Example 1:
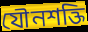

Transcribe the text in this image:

যৌনশক্তি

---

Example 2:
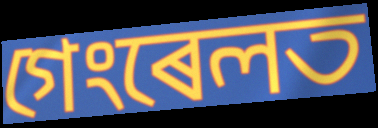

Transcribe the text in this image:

গেংৰেলত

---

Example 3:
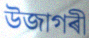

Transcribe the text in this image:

উজাগৰী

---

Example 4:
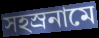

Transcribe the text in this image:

সহস্ৰনামে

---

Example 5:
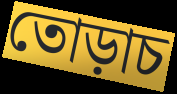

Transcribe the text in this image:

তোড়াচ